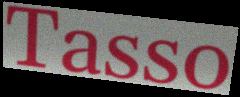
Tasso